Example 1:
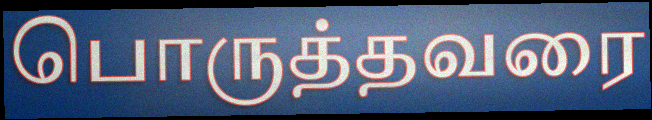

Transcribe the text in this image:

பொருத்தவரை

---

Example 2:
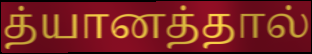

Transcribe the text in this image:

த்யானத்தால்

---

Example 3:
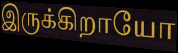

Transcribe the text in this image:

இருக்கிறாயோ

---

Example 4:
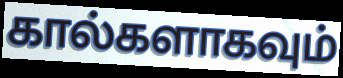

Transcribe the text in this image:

கால்களாகவும்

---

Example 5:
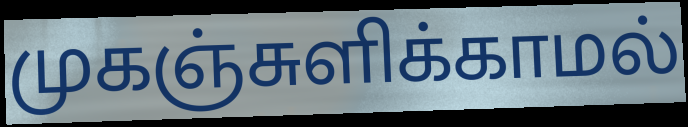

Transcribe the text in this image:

முகஞ்சுளிக்காமல்